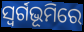
ସ୍ଵର୍ଗଭୂମିରେ